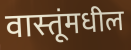
वास्तूंमधील